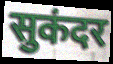
सुकंदर